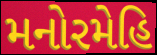
મનોરમેહિ